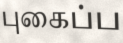
புகைப்ப